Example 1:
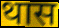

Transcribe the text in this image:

थास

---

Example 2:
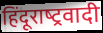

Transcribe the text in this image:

हिंदूराष्ट्रवादी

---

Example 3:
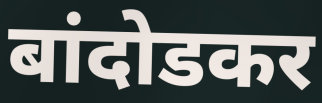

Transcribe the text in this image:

बांदोडकर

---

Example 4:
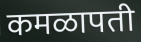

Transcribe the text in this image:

कमळापती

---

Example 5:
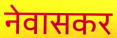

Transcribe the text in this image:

नेवासकर